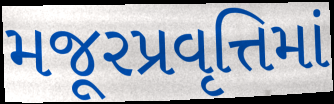
મજૂરપ્રવૃત્તિમાં